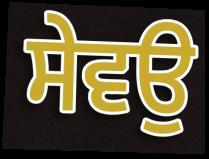
ਸੇਵਉ